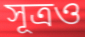
সূত্রও